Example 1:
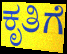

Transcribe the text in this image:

ಕೃತಿಗೆ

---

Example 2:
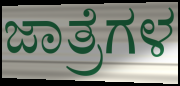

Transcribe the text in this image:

ಜಾತ್ರೆಗಳ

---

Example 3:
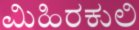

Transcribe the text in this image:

ಮಿಹಿರಕುಲಿ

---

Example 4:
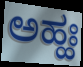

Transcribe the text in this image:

ಅಹ್ಹಃ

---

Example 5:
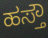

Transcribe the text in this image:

ಹಸ್ತೌ